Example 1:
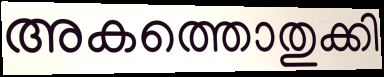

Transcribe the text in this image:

അകത്തൊതുക്കി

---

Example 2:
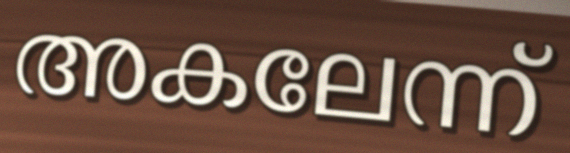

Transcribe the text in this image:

അകലേന്ന്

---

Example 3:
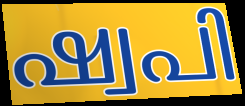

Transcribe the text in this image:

ഷ്വപി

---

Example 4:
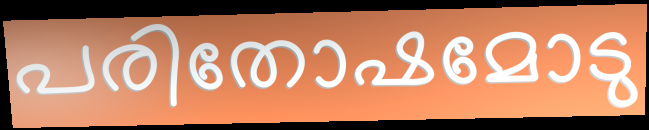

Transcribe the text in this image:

പരിതോഷമോടു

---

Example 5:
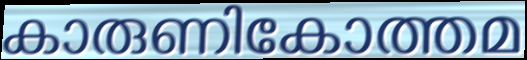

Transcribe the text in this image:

കാരുണികോത്തമ